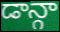
డాన్గా